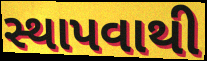
સ્થાપવાથી